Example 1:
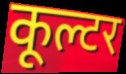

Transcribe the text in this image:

कूल्टर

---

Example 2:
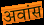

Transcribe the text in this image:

अवांस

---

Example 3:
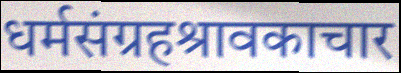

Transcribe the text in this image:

धर्मसंग्रहश्रावकाचार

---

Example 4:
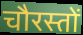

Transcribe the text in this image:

चौरस्तों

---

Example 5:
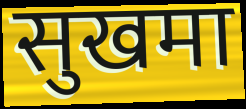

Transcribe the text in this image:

सुखमा